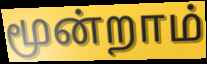
மூன்றாம்